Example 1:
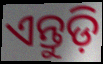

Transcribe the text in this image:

ଏନ୍ତୁଡ଼ି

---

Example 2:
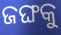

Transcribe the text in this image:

ଜଙ୍ଘକୁ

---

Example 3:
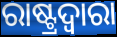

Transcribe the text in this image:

ରାଷ୍ଟ୍ରଦ୍ଵାରା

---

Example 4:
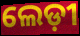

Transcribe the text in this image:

ଲେଡ଼ୀ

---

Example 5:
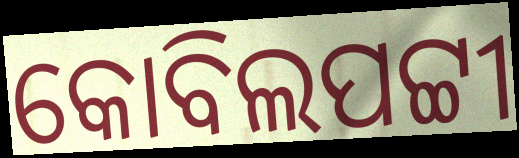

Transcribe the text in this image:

କୋବିଲପଟ୍ଟୀ